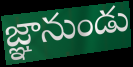
జ్ఞానుండు